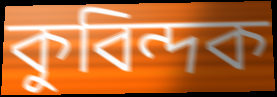
কুবিন্দক